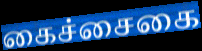
கைச்சைகை